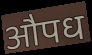
औपध